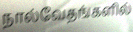
நால்வேதங்களில்